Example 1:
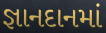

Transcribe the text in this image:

જ્ઞાનદાનમાં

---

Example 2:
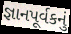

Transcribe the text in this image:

જ્ઞાનપૂર્વકનું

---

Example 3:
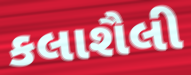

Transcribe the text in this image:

કલાશૈલી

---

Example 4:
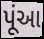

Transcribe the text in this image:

પૂંઆ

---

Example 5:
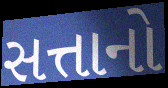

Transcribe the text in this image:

સત્તાનો